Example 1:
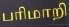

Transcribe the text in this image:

பரிமாறி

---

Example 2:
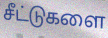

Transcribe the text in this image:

சீட்டுகளை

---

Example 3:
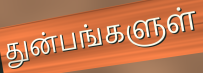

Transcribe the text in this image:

துன்பங்களுள்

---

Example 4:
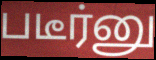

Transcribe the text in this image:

படீர்னு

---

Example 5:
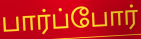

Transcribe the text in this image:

பார்ப்போர்